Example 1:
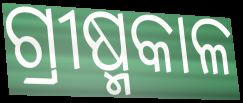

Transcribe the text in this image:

ଗ୍ରୀଷ୍ମକାଳ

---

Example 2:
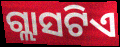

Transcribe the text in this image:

ଗ୍ଲାସଟିଏ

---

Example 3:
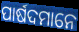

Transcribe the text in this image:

ପାର୍ଷଦମାନେ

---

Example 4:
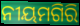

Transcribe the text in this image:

ନୀୟମଗିରି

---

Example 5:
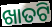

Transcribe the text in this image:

ଖାତଟି